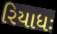
રિયાધઃ